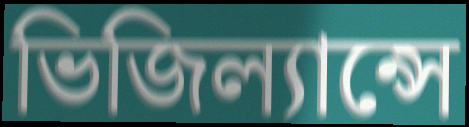
ভিজিল্যান্সে